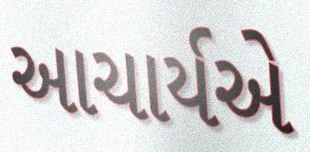
આચાર્યએ